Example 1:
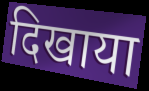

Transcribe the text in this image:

दिखाया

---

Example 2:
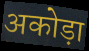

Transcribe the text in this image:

अकोड़ा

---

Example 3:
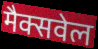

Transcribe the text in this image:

मैक्सवेल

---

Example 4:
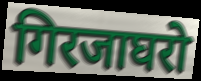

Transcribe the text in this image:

गिरजाघरो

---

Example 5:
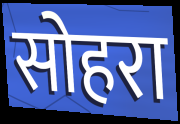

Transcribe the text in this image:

सोहरा